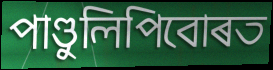
পাণ্ডুলিপিবোৰত